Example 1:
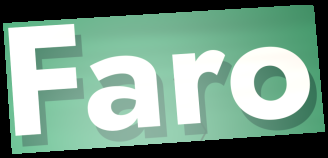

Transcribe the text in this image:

Faro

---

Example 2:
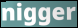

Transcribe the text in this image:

nigger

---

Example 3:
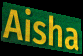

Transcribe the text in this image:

Aisha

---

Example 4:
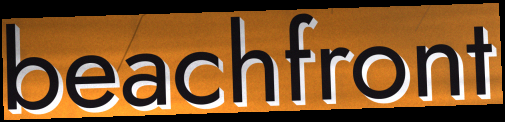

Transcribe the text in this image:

beachfront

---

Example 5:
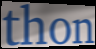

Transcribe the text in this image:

thon